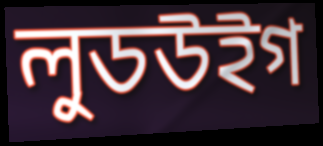
লুডউইগ